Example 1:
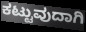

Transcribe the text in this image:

ಕಟ್ಟುವುದಾಗಿ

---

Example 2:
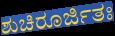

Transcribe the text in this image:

ಶುಚಿರೂರ್ಜಿತಃ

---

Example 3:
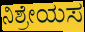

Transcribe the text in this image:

ನಿಶ್ರೇಯಸ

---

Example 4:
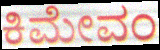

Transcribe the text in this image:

ಕಿಮೇವಂ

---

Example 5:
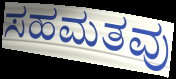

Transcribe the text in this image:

ಸಹಮತವು